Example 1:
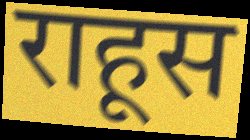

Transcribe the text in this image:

राहूस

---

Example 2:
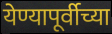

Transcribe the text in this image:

येण्यापूर्वीच्या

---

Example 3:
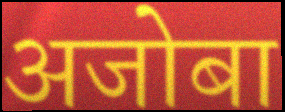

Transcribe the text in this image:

अजोबा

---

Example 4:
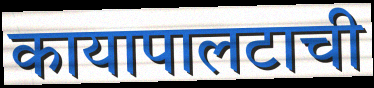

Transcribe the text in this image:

कायापालटाची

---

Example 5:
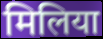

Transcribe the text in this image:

मिलिया